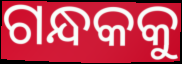
ଗନ୍ଧକକୁ